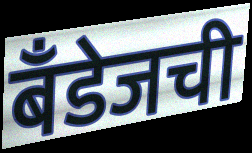
बँडेजची